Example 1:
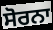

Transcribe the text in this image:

ਸੋਰਨਾ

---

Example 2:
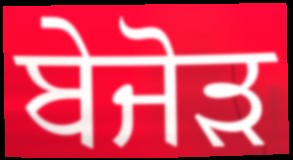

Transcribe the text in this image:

ਬੇਜੋੜ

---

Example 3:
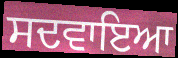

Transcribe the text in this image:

ਸਦਵਾਇਆ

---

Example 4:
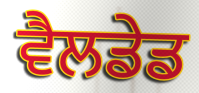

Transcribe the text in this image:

ਵੈਲਡੇਡ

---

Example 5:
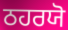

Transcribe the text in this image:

ਠਹਰਯੋ